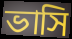
ভাসি